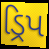
ડ્રિપ